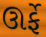
ઊર્ફે